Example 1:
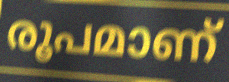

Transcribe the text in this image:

രൂപമാണ്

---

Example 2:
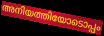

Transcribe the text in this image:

അനിയത്തിയോടൊപ്പം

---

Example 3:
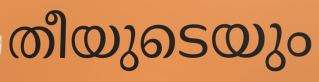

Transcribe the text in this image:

തീയുടെയും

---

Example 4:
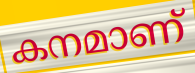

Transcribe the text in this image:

കനമാണ്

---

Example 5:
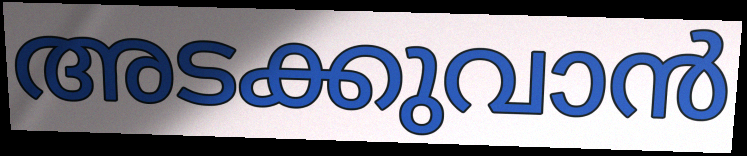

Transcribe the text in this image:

അടക്കുവാൻ